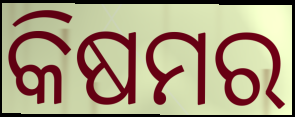
କିଷମର